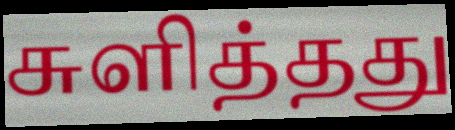
சுளித்தது